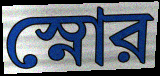
স্নোর